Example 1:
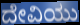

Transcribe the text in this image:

ದೇವಿಯು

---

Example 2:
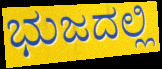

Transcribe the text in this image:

ಭುಜದಲ್ಲಿ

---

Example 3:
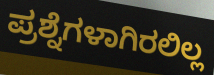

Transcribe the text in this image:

ಪ್ರಶ್ನೆಗಳಾಗಿರಲಿಲ್ಲ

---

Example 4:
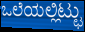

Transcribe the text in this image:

ಒಲೆಯಲ್ಲಿಟ್ಟು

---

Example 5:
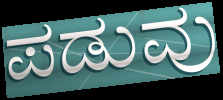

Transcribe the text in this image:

ಪಡುವು